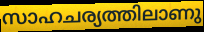
സാഹചര്യത്തിലാണു